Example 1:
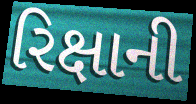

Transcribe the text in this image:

રિક્ષાની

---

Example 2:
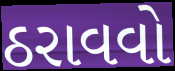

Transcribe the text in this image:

ઠરાવવો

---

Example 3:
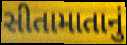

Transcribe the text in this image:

સીતામાતાનું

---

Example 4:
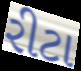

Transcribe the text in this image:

રીટા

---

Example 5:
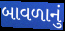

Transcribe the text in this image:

બાવળાનું